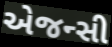
એજન્સી